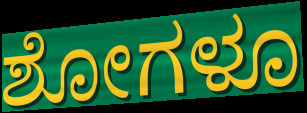
ಶೋಗಳೂ